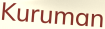
Kuruman